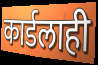
कार्डलाही